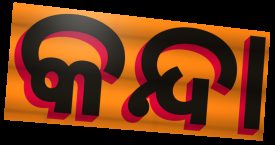
କନ୍ଦା